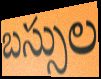
బస్సుల